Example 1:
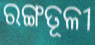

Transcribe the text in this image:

ରଙ୍ଗତୂଳୀ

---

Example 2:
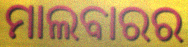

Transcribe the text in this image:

ମାଲବାରର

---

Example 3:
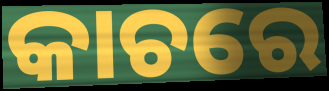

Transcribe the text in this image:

କାଚରେ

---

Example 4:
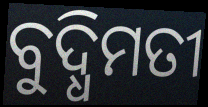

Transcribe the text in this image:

ବୁଦ୍ଧିମତୀ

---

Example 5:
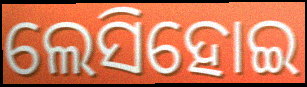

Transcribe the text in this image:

ଲେସିହୋଇ